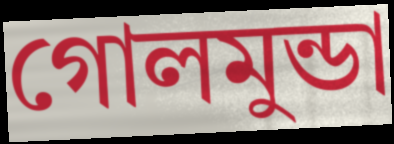
গোলমুন্ডা